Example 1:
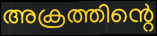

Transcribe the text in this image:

അക്രത്തിന്റെ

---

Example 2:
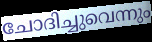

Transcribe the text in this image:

ചോദിച്ചുവെന്നും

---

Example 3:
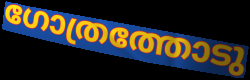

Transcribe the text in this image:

ഗോത്രത്തോടു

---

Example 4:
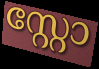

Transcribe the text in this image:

സ്റ്റോ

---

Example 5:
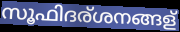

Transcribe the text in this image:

സൂഫിദര്ശനങ്ങള്